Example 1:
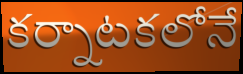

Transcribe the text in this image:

కర్నాటకలోనే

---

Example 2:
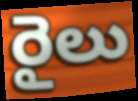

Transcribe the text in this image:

రైలు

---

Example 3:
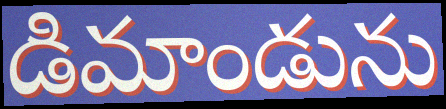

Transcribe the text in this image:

డిమాండును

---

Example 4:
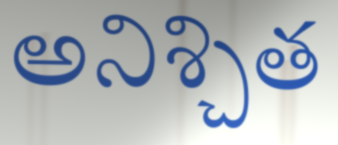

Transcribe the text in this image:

అనిశ్చిత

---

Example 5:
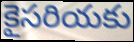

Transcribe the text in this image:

కైసరియకు